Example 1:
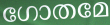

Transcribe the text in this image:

ഗോതമേ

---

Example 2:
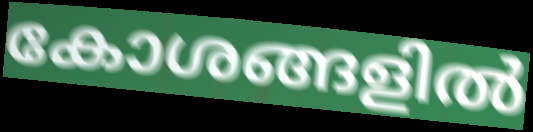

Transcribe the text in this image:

കോശങ്ങളിൽ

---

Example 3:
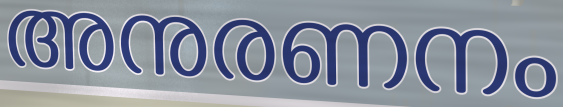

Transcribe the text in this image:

അനുരണനം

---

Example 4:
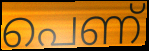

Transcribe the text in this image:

പെണ്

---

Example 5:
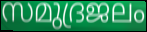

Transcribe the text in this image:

സമുദ്രജലം